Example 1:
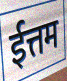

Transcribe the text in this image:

ईत्तम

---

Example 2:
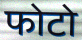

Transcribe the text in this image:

फोटो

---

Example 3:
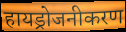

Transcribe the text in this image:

हायड्रोजनीकरण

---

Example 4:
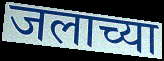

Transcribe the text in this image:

जलाच्या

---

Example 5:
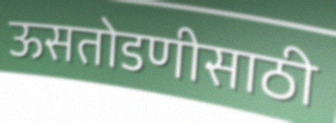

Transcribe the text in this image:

ऊसतोडणीसाठी